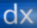
dx